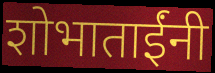
शोभाताईंनी